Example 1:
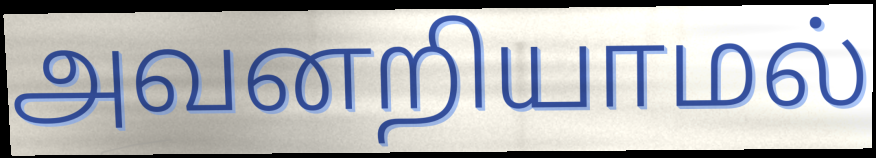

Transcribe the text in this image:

அவனறியாமல்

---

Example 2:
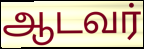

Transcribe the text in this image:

ஆடவர்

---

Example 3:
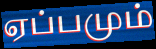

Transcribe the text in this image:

ஏப்பமும்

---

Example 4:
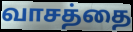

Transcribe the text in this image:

வாசத்தை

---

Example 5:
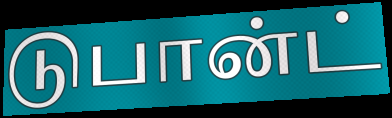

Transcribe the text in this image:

டுபான்ட்